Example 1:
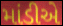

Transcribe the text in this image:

માંડીએ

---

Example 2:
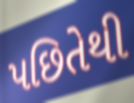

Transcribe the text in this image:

પછિતેથી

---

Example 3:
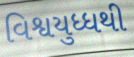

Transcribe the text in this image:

વિશ્વયુધ્ધથી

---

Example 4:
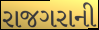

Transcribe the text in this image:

રાજગરાની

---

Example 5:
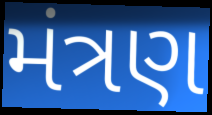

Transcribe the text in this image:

મંત્રણ